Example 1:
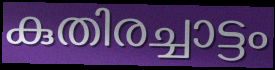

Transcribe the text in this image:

കുതിരച്ചാട്ടം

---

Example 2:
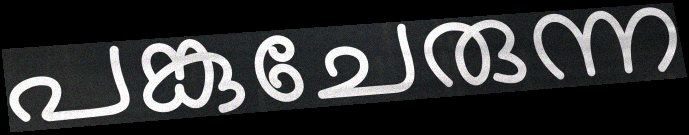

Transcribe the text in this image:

പങ്കുചേരുന്ന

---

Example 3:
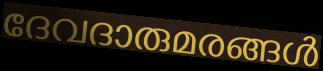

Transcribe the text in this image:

ദേവദാരുമരങ്ങൾ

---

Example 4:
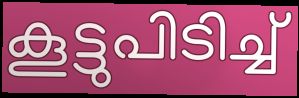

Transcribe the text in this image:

കൂട്ടുപിടിച്ച്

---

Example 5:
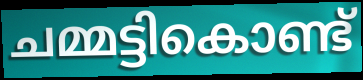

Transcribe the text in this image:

ചമ്മട്ടികൊണ്ട്